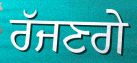
ਰੱਜਣਗੇ